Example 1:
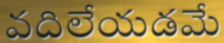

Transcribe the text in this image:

వదిలేయడమే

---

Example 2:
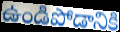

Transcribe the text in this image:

ఉండిపోడానికి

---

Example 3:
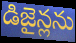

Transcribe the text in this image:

డిజైన్లను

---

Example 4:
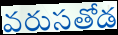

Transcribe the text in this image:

వరుసతోడ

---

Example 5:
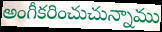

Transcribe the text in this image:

అంగీకరించుచున్నాము